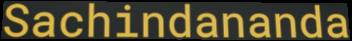
Sachindananda